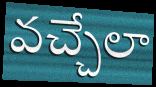
వచ్చేలా